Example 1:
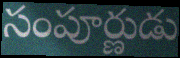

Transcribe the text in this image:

సంపూర్ణుడు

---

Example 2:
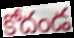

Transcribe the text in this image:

కోదండ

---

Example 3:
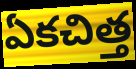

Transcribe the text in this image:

ఏకచిత్త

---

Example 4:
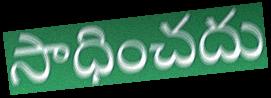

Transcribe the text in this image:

సాధించదు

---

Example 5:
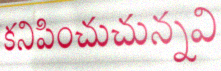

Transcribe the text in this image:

కనిపించుచున్నవి